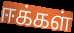
ஈக்கள்